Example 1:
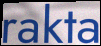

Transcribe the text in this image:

rakta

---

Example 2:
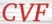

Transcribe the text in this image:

CVF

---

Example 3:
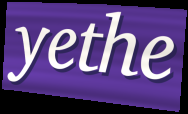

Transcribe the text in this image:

yethe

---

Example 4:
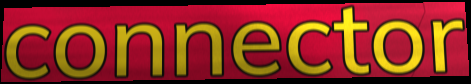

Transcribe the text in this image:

connector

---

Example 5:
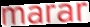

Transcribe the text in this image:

marar